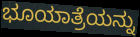
ಭೂಯಾತ್ರೆಯನ್ನು